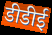
डीडीई